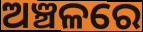
ଅଞ୍ଚଳରେ